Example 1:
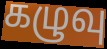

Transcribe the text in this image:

கழுவு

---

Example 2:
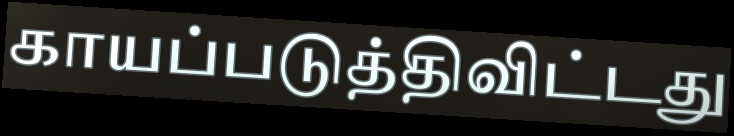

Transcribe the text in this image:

காயப்படுத்திவிட்டது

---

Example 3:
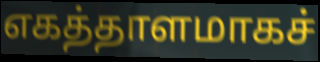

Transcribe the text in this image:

எகத்தாளமாகச்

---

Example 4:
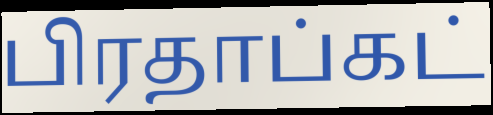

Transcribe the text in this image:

பிரதாப்கட்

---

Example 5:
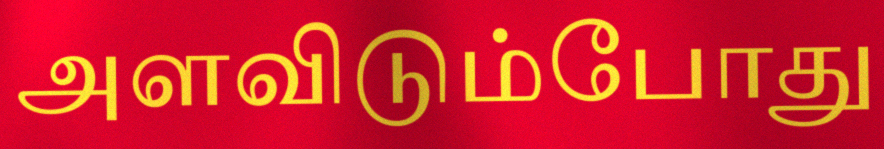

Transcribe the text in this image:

அளவிடும்போது